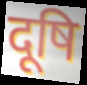
दूषि